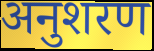
अनुशरण